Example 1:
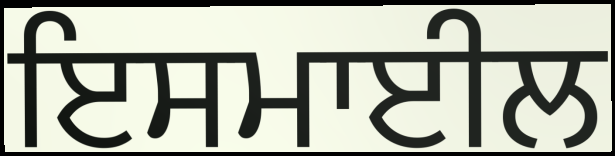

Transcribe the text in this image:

ਇਸਮਾਈਲ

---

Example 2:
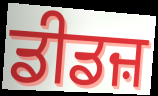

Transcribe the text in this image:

ਡੀਡਜ਼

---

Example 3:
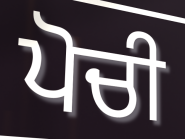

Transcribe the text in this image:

ਪੋਚੀ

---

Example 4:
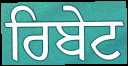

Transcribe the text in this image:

ਰਿਬੇਟ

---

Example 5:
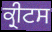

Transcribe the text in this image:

ਕ੍ਰੀਟਸ